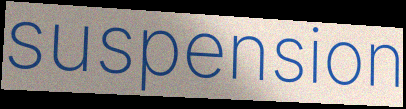
suspension